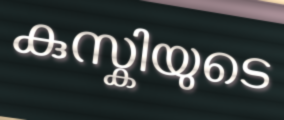
കുസ്കിയുടെ